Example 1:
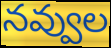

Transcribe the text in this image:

నవ్వుల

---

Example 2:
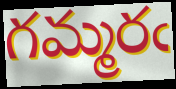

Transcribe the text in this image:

గమ్మరఁ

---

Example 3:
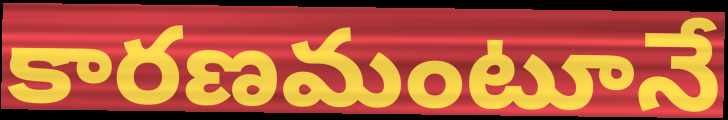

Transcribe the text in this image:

కారణమంటూనే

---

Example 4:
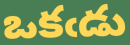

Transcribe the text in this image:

ఒకఁడు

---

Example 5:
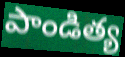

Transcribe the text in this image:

పాండిత్య